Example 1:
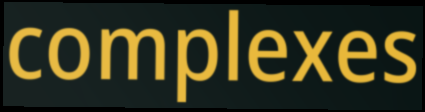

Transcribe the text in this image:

complexes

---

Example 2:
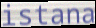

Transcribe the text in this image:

istana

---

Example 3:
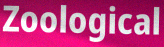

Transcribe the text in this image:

Zoological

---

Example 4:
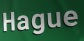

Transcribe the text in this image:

Hague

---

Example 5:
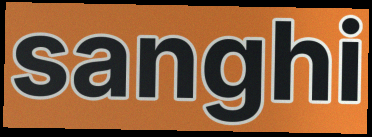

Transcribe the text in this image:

sanghi